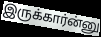
இருக்கார்ன்னு